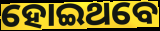
ହୋଇଥବେ